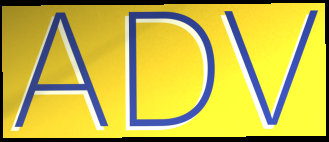
ADV